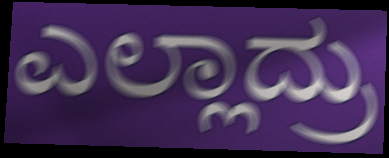
ಎಲ್ಲಾದ್ರು